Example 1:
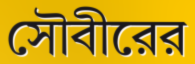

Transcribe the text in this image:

সৌবীরের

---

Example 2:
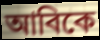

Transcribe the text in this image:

আবিকে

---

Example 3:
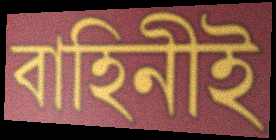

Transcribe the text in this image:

বাহিনীই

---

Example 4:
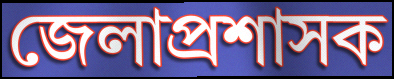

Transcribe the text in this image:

জেলাপ্রশাসক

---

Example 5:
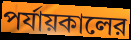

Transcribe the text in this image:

পর্যায়কালের